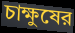
চাক্ষুষের